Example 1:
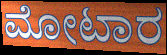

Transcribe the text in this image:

ಮೋಟಾರ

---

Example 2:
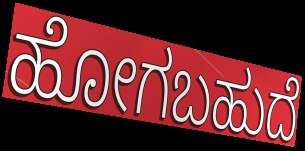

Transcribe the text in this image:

ಹೋಗಬಹುದೆ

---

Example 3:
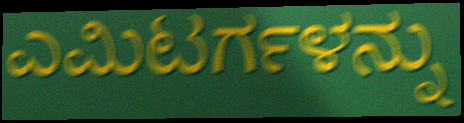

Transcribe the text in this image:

ಎಮಿಟರ್ಗಳನ್ನು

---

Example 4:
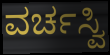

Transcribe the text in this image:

ವರ್ಚಸ್ವಿ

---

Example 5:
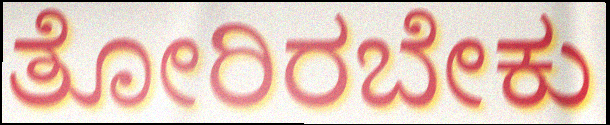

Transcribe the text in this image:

ತೋರಿರಬೇಕು